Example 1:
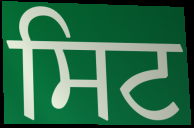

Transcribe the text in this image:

ਸਿਟ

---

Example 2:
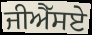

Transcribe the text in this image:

ਜੀਐੱਸਏ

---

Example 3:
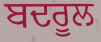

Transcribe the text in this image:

ਬਦਰੂਲ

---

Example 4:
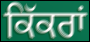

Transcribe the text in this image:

ਕਿੱਕਰਾਂ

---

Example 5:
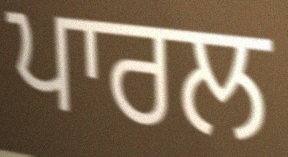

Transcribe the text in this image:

ਪਾਰਲ